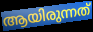
ആയിരുന്നത്